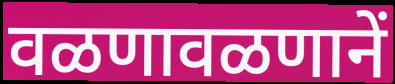
वळणावळणानें